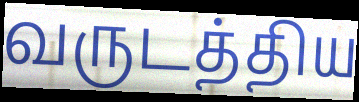
வருடத்திய